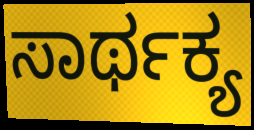
ಸಾರ್ಥಕ್ಯ